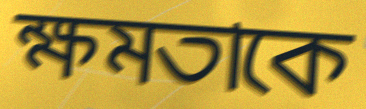
ক্ষমতাকে